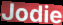
Jodie